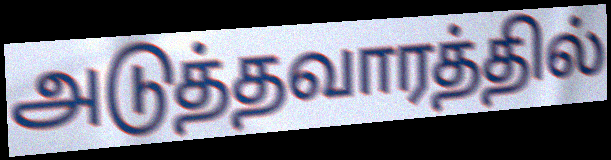
அடுத்தவாரத்தில்